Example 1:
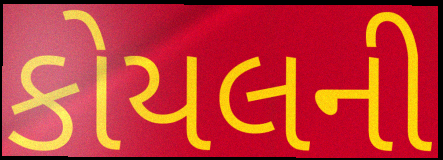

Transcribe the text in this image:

કોયલની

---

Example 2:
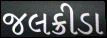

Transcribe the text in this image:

જલક્રીડા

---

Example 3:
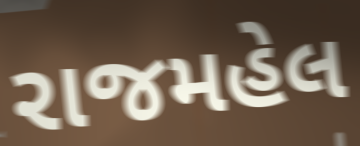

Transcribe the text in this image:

રાજમહેલ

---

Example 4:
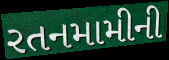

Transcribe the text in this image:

રતનમામીની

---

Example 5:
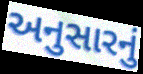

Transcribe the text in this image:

અનુસારનું